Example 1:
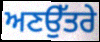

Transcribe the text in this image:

ਅਣਉੱਤਰੇ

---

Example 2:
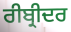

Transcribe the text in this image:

ਰੀਬ੍ਰੀਦਰ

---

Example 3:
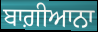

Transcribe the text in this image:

ਬਾਗ਼ੀਆਨਾ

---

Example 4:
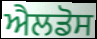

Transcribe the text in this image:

ਐਲਡੋਸ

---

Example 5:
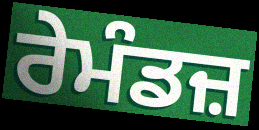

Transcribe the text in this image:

ਰੇਮੰਡਜ਼